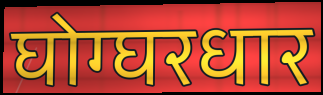
घोग्घरधार